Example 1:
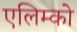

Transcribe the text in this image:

एलिम्को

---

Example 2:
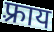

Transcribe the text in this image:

फ़्राय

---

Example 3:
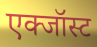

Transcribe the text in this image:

एक्जॉस्ट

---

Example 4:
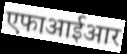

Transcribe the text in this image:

एफाआईआर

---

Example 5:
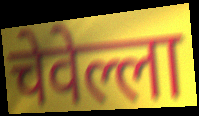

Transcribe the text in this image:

चेवेल्ला